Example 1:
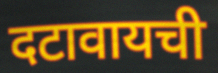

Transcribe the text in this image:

दटावायची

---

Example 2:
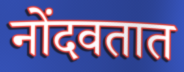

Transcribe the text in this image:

नोंदवतात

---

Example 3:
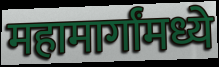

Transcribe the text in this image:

महामार्गांमध्ये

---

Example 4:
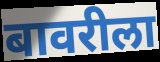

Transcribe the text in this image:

बावरीला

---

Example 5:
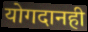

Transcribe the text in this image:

योगदानही